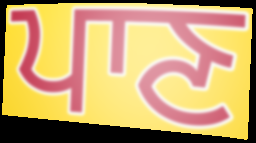
ਪਾਣ